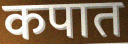
कपात